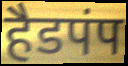
हैडपंप